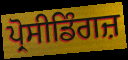
ਪ੍ਰੋਸੀਡਿੰਗਜ਼